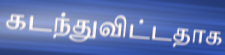
கடந்துவிட்டதாக